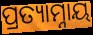
ପ୍ରତ୍ୟାମ୍ନାୟ